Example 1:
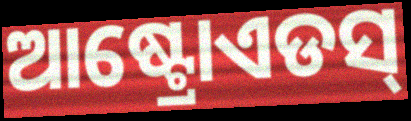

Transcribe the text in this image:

ଆଷ୍ଟ୍ରୋଏଡସ୍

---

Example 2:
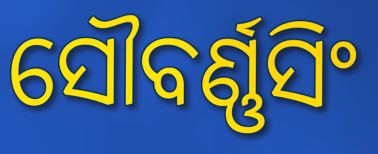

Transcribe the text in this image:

ସୌବର୍ଣ୍ଣସିଂ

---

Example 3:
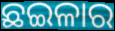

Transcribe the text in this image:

ଛଇଳାର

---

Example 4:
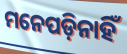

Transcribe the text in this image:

ମନେପଡ଼ିନାହିଁ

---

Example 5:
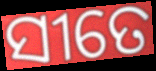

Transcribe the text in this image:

ସୀତେ